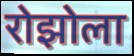
रोझोला